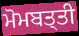
ਮੋਮਬਤ੍ਤੀ